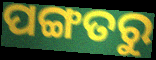
ପଙ୍ଗତରୁ